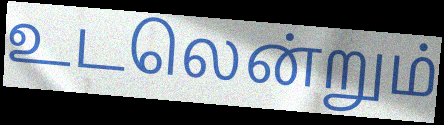
உடலென்றும்